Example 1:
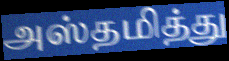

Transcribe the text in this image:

அஸ்தமித்து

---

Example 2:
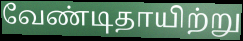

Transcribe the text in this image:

வேண்டிதாயிற்று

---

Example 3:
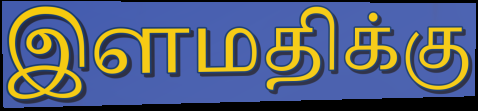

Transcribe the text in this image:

இளமதிக்கு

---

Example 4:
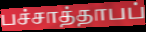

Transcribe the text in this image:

பச்சாத்தாபப்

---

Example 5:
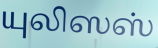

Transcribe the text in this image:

யுலிஸஸ்